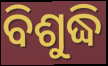
ବିଶୁଦ୍ଧି